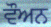
ਵੌਅਨ